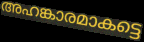
അഹങ്കാരമാകട്ടെ